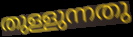
തുള്ളുന്നതു